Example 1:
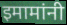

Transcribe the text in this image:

इमामांनी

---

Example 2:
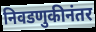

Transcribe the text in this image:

निवडणुकीनंतर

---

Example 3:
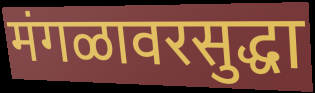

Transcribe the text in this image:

मंगळावरसुद्धा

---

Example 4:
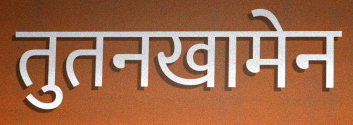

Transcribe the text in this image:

तुतनखामेन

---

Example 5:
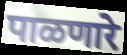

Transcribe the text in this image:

पाळणारे